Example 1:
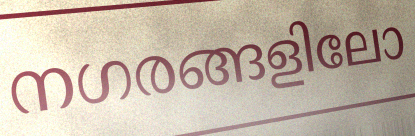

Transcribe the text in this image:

നഗരങ്ങളിലോ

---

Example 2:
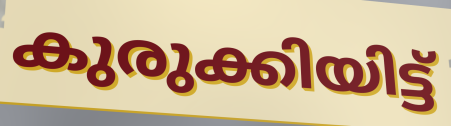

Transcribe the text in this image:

കുരുക്കിയിട്ട്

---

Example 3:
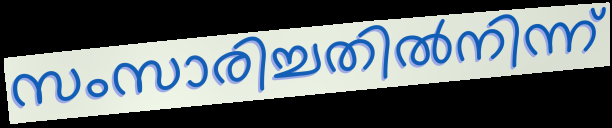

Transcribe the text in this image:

സംസാരിച്ചതിൽനിന്ന്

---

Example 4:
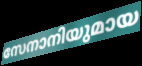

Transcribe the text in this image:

സേനാനിയുമായ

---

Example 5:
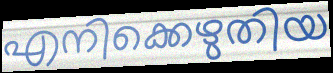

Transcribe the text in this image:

എനിക്കെഴുതിയ